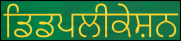
ਡਿਡਪਲੀਕੇਸ਼ਨ